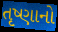
તૃષ્ણાનો